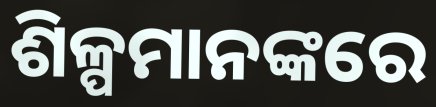
ଶିଳ୍ପମାନଙ୍କରେ